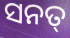
ସନତ୍